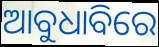
ଆବୁଧାବିରେ